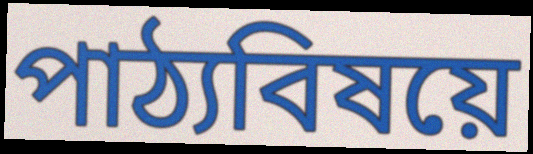
পাঠ্যবিষয়ে